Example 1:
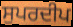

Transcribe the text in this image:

ਸੁਪਰਦੀਪ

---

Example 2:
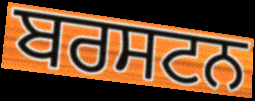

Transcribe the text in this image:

ਬਰਸਟਨ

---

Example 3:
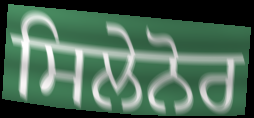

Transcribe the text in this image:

ਸਿਲੇਨੋਰ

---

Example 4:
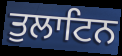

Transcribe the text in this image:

ਤੁਲਾਟਿਨ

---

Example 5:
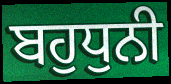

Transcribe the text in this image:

ਬਹੁਧੁਨੀ